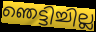
ഞെട്ടിച്ചില്ല